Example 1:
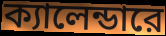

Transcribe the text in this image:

ক্যালেন্ডারে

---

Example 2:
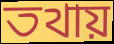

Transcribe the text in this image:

তথায়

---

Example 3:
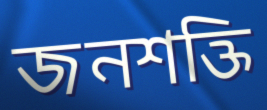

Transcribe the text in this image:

জনশক্তি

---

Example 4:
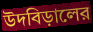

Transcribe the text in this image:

উদবিড়ালের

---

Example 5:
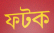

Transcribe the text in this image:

ফটক